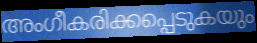
അംഗീകരിക്കപ്പെടുകയും